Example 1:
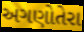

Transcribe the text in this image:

અગણોતેરા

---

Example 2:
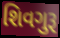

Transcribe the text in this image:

શિવગુરૂ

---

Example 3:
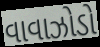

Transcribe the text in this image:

વાવાઝોડો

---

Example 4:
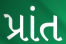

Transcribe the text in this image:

પ્રાંત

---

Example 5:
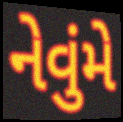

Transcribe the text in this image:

નેવુંમે